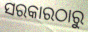
ସରକାରଠାରୁ